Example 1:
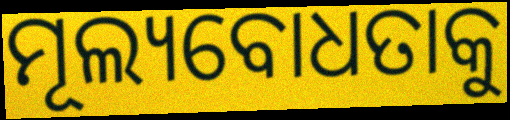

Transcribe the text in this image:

ମୂଲ୍ୟବୋଧତାକୁ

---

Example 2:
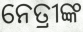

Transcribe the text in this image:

ନେତ୍ରୀଙ୍କ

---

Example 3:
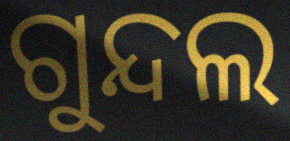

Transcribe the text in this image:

ଗୁନ୍ଦଲ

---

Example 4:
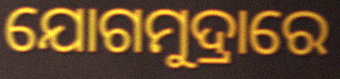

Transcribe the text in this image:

ଯୋଗମୁଦ୍ରାରେ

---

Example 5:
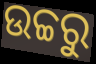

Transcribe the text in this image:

ଉଚ୍ଚରୁ